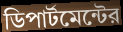
ডিপার্টমেন্টের